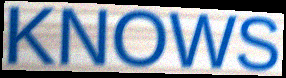
KNOWS